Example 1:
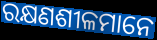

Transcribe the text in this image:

ରକ୍ଷଣଶୀଳମାନେ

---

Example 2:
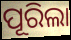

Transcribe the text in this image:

ପୂରିଲା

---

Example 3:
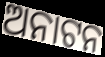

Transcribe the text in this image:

ଅନାଟନ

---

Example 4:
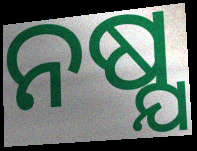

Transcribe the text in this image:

ନଷ୍ଯ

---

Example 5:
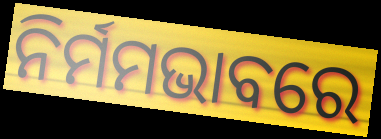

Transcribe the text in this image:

ନିର୍ମମଭାବରେ